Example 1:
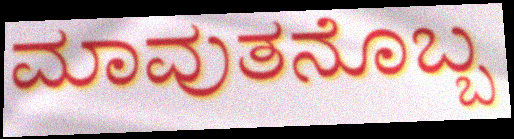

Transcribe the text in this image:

ಮಾವುತನೊಬ್ಬ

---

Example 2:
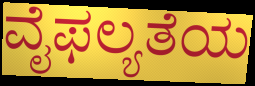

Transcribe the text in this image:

ವೈಫಲ್ಯತೆಯ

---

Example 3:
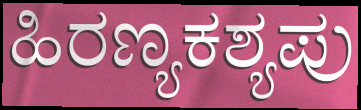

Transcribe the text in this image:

ಹಿರಣ್ಯಕಶ್ಯಪು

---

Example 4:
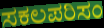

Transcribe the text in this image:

ಸಕಲಪರಿಸಂ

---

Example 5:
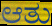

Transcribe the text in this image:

ಆತು